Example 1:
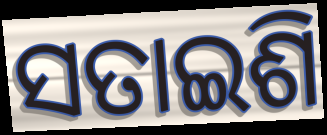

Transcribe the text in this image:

ସତାଇଶି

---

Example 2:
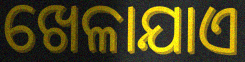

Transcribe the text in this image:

ଖେଳାଯାଏ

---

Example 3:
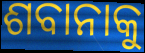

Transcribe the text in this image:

ଶବାନାକୁ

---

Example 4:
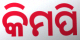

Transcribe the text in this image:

କିମପି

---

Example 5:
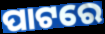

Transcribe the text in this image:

ପାଟରେ